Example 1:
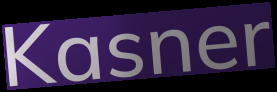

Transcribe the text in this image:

Kasner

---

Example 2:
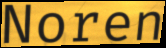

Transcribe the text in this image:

Noren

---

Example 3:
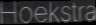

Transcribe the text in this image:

Hoekstra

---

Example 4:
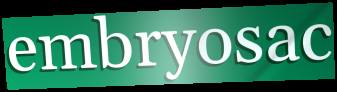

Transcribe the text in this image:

embryosac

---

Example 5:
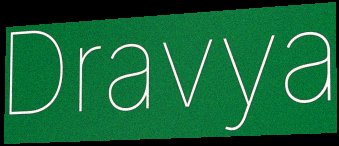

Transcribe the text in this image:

Dravya